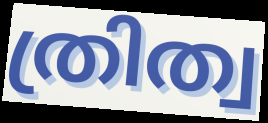
ത്രിത്വ